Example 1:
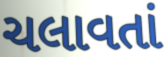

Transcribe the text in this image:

ચલાવતાં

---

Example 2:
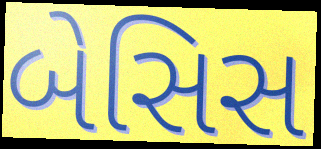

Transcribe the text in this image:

બેસિસ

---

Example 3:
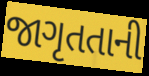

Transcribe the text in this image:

જાગૃતતાની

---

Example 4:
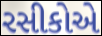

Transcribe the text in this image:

રસીકોએ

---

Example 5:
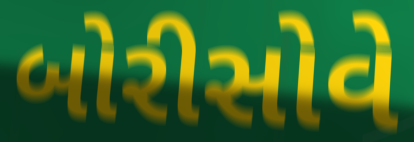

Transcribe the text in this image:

બોરીસોવે